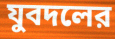
যুবদলের